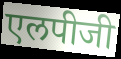
एलपीजी